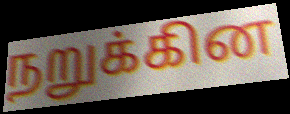
நறுக்கின